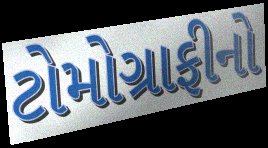
ટોમોગ્રાફીનો